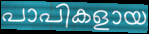
പാപികളായ